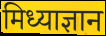
मिध्याज्ञान